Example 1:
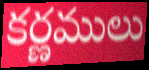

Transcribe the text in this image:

కర్ణములు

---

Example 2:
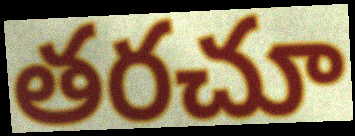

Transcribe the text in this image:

తరచూ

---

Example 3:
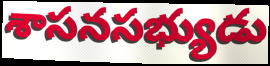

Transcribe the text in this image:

శాసనసభ్యుడు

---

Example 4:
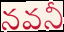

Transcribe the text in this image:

నవనీ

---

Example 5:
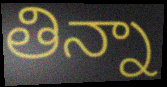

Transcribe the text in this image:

తిన్నా